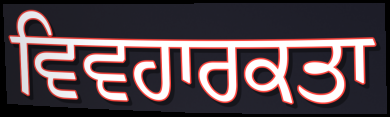
ਵਿਵਹਾਰਕਤਾ